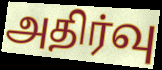
அதிர்வு